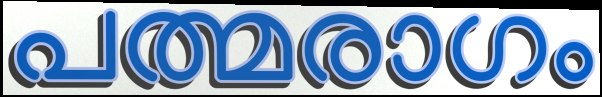
പത്മരാഗം